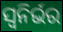
ସ୍ୱନିର୍ଭର